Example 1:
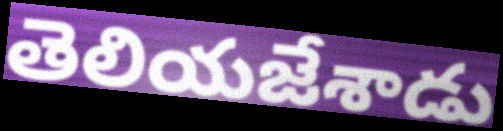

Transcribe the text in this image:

తెలియజేశాడు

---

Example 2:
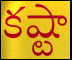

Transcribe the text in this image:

కష్టా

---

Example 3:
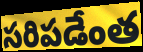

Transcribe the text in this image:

సరిపడేంత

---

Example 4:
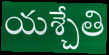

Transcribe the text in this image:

యశ్చేతి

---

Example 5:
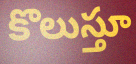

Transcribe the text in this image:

కొలుస్తూ